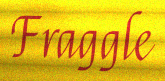
Fraggle